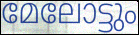
മേലോട്ടും